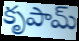
కృపామ్